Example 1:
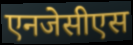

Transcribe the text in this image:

एनजेसीएस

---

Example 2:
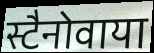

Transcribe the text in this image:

स्टैनोवाया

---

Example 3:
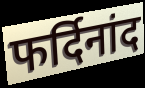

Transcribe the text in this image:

फर्दिनांद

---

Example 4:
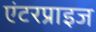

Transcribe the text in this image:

एंटरप्राइज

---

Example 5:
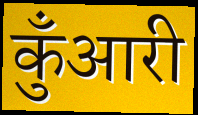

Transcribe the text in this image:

कुँआरी